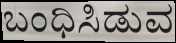
ಬಂಧಿಸಿಡುವ